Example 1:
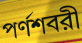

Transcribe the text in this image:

পর্ণশবরী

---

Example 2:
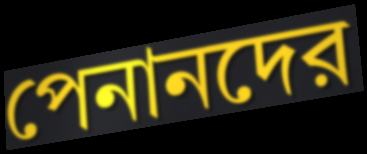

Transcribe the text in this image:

পেনানদের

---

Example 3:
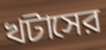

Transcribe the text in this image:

খটাসের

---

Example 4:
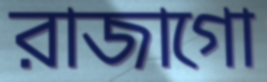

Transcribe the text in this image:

রাজাগো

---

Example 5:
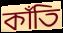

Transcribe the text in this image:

কাঁতি